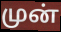
முன்